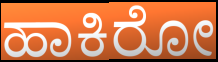
ಹಾಕಿರೋ